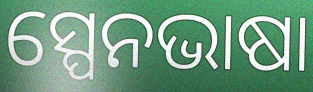
ସ୍ପେନଭାଷା